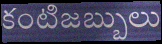
కంటిజబ్బులు